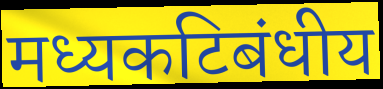
मध्यकटिबंधीय